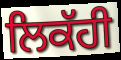
ਲਿਕੱਹੀ